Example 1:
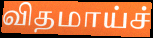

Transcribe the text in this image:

விதமாய்ச்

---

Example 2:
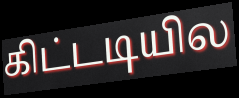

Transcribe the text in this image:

கிட்டடியில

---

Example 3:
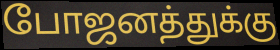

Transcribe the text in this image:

போஜனத்துக்கு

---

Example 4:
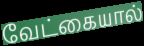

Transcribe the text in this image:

வேட்கையால்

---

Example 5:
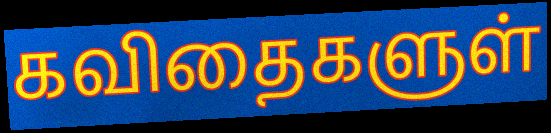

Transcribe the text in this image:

கவிதைகளுள்